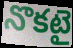
నొకటై